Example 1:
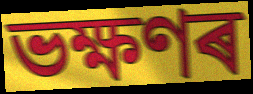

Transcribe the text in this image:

ভক্ষণৰ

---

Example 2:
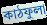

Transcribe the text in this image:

কাঠফুলা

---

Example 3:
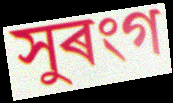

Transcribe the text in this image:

সুৰংগ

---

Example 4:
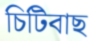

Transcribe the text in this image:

চিটিবাছ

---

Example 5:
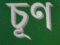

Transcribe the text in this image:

চূণ